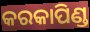
କରକାପିଣ୍ଡ